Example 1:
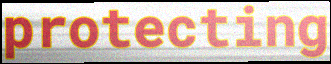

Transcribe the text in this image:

protecting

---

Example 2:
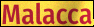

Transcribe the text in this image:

Malacca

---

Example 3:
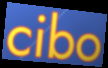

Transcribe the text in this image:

cibo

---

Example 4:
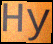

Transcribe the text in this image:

Hy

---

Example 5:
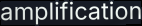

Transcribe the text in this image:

amplification